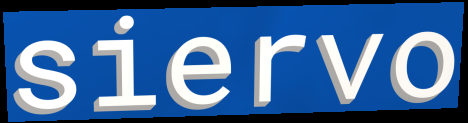
siervo